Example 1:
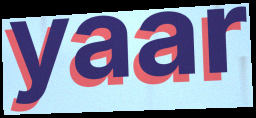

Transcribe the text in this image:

yaar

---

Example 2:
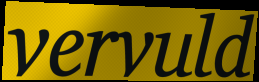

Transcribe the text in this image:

vervuld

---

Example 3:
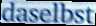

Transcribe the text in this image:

daselbst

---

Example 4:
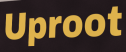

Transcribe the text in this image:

Uproot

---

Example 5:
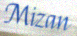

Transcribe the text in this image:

Mizan